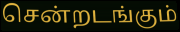
சென்றடங்கும்